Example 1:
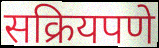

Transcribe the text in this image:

सक्रियपणे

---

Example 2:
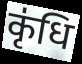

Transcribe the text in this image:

कृ॑धि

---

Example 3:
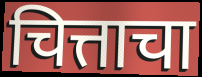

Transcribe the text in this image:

चित्ताचा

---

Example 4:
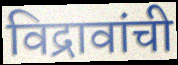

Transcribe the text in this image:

विद्रावांची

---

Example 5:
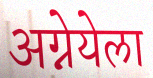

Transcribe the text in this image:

अग्नेयेला